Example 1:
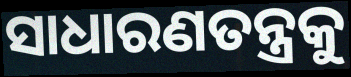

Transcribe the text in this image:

ସାଧାରଣତନ୍ତ୍ରକୁ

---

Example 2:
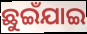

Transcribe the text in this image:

ଛୁଇଁଯାଇ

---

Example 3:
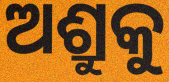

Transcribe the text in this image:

ଅଶ୍ରୁକୁ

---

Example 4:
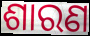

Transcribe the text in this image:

ଶାରଣ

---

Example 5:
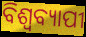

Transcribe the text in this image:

ବିଶ୍ୱବ୍ୟାପୀ